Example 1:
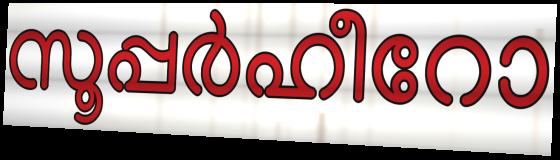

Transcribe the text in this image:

സൂപ്പർഹീറോ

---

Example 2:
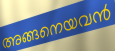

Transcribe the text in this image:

അങ്ങനെയവൻ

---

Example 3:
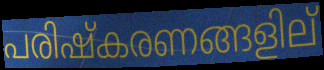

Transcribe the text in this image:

പരിഷ്കരണങ്ങളില്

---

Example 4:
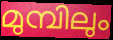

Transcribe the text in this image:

മുമ്പിലും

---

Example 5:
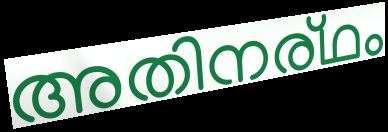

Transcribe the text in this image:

അതിനര്ഥം